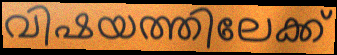
വിഷയത്തിലേക്ക്